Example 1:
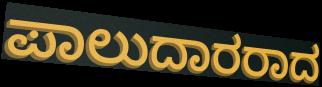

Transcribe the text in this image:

ಪಾಲುದಾರರಾದ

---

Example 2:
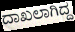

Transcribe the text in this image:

ದಾಖಲಾಗಿದ್ದ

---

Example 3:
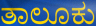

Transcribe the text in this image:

ತಾಲೂಕು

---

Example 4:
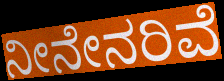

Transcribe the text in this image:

ನೀನೇನರಿವೆ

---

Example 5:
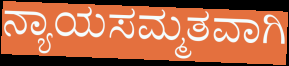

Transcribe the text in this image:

ನ್ಯಾಯಸಮ್ಮತವಾಗಿ